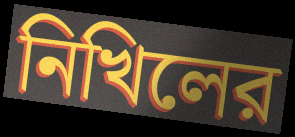
নিখিলের